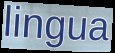
lingua